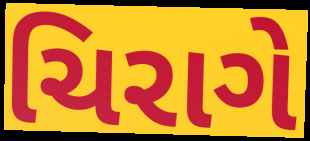
ચિરાગે